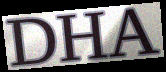
DHA